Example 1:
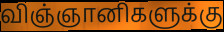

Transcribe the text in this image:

விஞ்ஞானிகளுக்கு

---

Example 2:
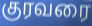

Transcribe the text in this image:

குரவரை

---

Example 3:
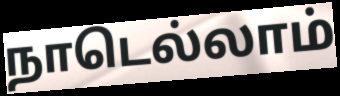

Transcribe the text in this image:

நாடெல்லாம்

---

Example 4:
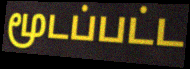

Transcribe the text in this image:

மூடப்பட்ட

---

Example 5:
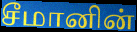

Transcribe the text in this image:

சீமானின்